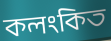
কলংকিত